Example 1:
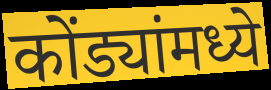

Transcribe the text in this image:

कोंड्यांमध्ये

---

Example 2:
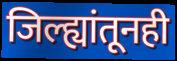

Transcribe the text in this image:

जिल्ह्यांतूनही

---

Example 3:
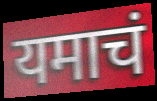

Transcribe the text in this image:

यमाचं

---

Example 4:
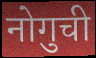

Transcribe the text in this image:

नोगुची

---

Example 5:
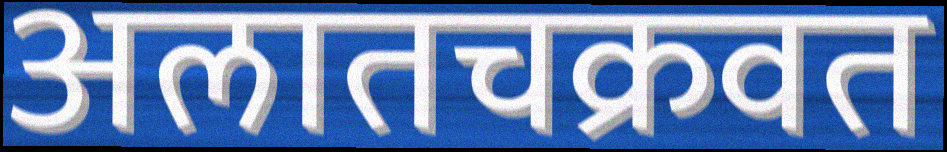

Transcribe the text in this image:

अलातचक्रवत